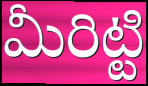
మీరిట్టి